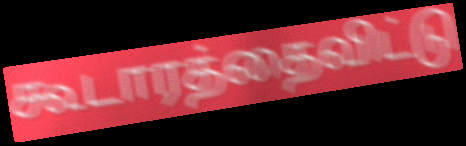
கூடாரத்தைவிட்டு